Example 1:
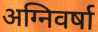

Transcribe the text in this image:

अग्निवर्षा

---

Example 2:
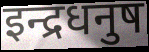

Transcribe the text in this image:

इन्द्रधनुष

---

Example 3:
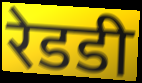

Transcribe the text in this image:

रेडडी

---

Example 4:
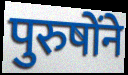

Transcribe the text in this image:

पुरुषोंने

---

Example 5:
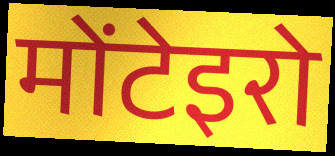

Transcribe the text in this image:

मोंटेइरो